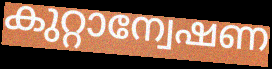
കുറ്റാന്വേഷണ